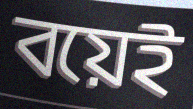
বয়েই